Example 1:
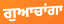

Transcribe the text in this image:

ਗੁਆਚਾਂਗਾ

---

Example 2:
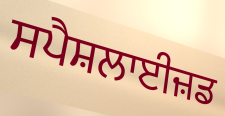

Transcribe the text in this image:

ਸਪੈਸ਼ਲਾਈਜ਼ਡ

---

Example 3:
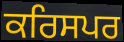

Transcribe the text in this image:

ਕਰਿਸਪਰ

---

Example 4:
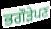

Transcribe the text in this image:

ਭਗੌੜੇਪਣ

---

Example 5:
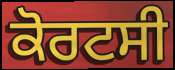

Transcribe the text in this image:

ਕੋਰਟਸੀ